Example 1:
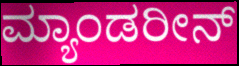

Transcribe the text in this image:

ಮ್ಯಾಂಡರೀನ್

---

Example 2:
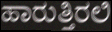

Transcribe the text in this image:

ಹಾರುತ್ತಿರಲಿ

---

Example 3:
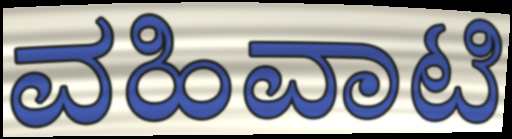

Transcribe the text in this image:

ವಹಿವಾಟಿ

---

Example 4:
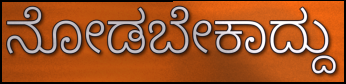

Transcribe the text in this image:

ನೋಡಬೇಕಾದ್ದು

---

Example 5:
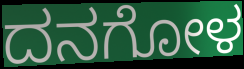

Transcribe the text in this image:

ದನಗೋಳ